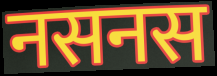
नसनस